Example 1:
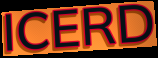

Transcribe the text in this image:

ICERD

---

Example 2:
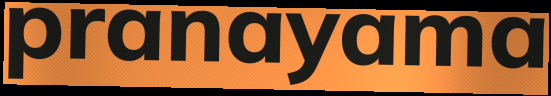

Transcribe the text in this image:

pranayama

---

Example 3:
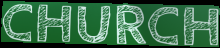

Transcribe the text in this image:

CHURCH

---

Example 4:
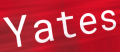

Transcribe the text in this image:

Yates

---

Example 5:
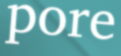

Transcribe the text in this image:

pore